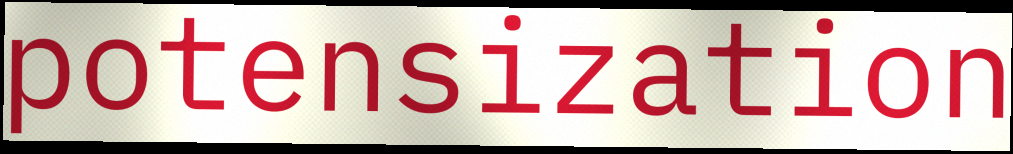
potensization